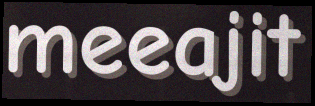
meeajit